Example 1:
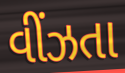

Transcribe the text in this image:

વીંઝતા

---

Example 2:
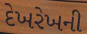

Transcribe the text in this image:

દેખરેખની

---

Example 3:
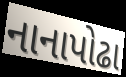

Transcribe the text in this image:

નાનાપોઢા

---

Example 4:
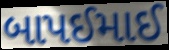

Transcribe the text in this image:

બાપઈમાઈ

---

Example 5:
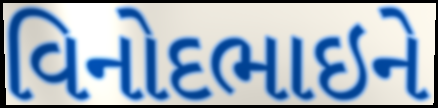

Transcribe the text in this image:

વિનોદભાઇને